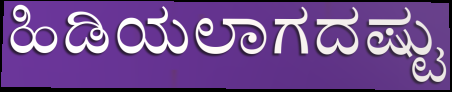
ಹಿಡಿಯಲಾಗದಷ್ಟು